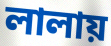
লালায়